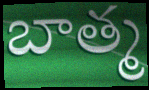
బాత్మ